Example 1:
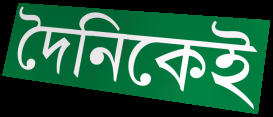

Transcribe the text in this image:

দৈনিকেই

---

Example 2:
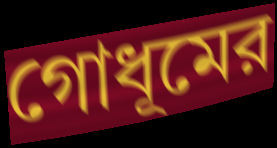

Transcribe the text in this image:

গোধূমের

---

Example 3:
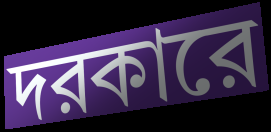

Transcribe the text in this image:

দরকারে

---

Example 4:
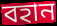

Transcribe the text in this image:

বহান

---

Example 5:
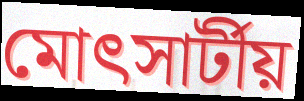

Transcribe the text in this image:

মোৎসার্টীয়